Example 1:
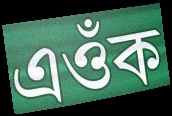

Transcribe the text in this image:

এওঁক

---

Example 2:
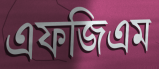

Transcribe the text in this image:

এফজিএম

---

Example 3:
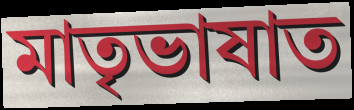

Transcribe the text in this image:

মাতৃভাষাত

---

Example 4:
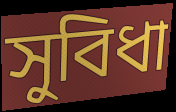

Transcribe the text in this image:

সুবিধা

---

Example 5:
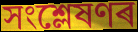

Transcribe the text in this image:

সংশ্লেষণৰ